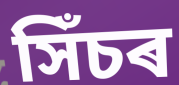
সিঁচৰ